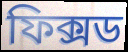
ফিক্সড